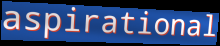
aspirational